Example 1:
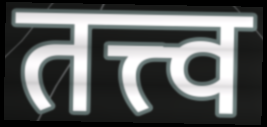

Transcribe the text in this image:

तत्त्व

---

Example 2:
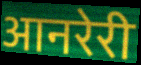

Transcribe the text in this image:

आनरेरी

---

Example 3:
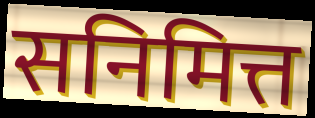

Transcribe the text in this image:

सनिमित्त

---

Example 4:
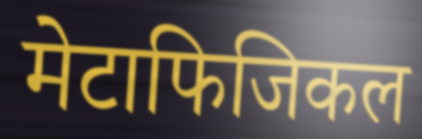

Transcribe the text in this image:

मेटाफिजिकल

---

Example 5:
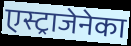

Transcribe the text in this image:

एस्ट्राजेनेका